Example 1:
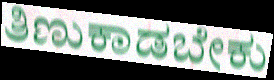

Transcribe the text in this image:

ತಿಣುಕಾಡಬೇಕು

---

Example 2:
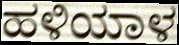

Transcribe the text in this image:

ಹಳಿಯಾಳ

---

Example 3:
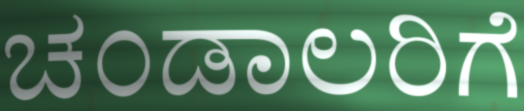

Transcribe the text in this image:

ಚಂಡಾಲರಿಗೆ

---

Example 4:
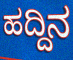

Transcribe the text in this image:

ಹದ್ದಿನ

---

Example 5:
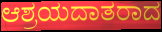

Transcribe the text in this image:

ಆಶ್ರಯದಾತರಾದ